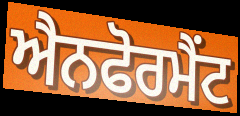
ਐਨਫੋਰਮੈਂਟ